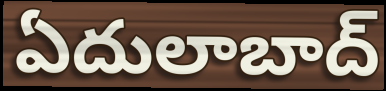
ఏదులాబాద్